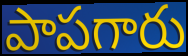
పాపగారు